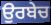
ਉਰਬੇਚ